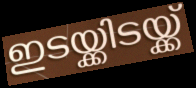
ഇടയ്ക്കിടയ്ക്ക്